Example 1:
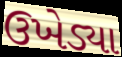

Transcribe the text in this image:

ઉખેડ્યા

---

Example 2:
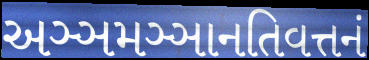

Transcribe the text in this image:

અઞ્ઞમઞ્ઞાનતિવત્તનં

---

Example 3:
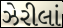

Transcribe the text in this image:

ઝેરીલાં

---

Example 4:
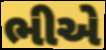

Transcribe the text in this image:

ભીએ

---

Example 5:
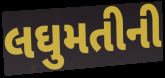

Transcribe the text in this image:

લઘુમતીની